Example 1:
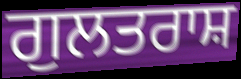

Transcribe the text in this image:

ਗੁਲਤਰਾਸ਼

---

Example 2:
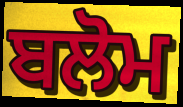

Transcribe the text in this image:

ਬਲੋਮ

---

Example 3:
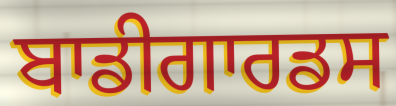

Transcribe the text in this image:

ਬਾਡੀਗਾਰਡਸ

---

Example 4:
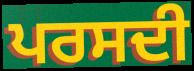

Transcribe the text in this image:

ਪਰਸਦੀ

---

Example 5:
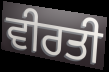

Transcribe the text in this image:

ਵੀਰਤੀ